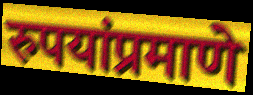
रुपयांप्रमाणे